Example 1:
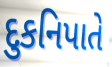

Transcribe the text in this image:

દુકનિપાતે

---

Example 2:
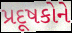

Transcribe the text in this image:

પ્રદૂષકોને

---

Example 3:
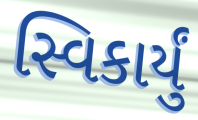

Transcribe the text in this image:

સ્વિકાર્યું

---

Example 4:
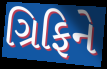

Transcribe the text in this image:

ગ્રિફિને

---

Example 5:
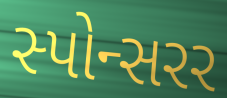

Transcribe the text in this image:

સ્પોન્સરર